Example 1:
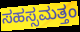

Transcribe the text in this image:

ಸಹಸ್ಸಮತ್ತಂ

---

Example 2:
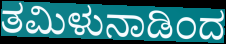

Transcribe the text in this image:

ತಮಿಳುನಾಡಿಂದ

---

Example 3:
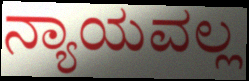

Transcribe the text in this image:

ನ್ಯಾಯವಲ್ಲ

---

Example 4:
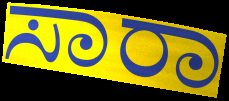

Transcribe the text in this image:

ಸಾರಾ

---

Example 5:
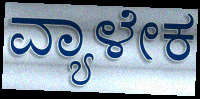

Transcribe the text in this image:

ವ್ಯಾಳೇಕ